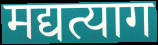
मद्यत्याग